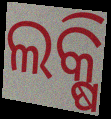
ଲକ୍ଷି